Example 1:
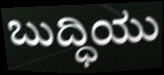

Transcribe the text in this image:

ಬುದ್ಧಿಯು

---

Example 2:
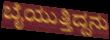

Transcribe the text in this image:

ಬೈಯುತ್ತಿದ್ದನು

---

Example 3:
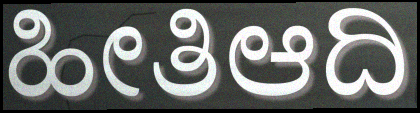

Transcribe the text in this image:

ಹೀತಿಆದಿ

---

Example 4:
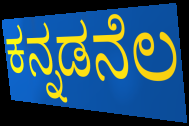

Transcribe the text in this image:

ಕನ್ನಡನೆಲ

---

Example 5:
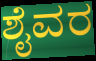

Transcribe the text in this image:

ಶೈವರ